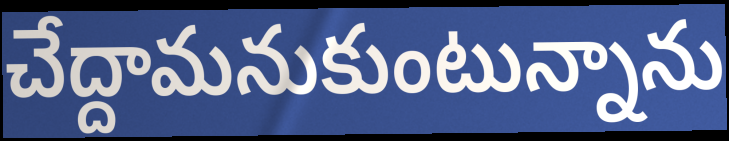
చేద్దామనుకుంటున్నాను